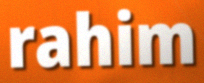
rahim